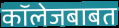
कॉलेजबाबत